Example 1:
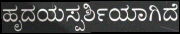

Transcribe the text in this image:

ಹೃದಯಸ್ಪರ್ಶಿಯಾಗಿದೆ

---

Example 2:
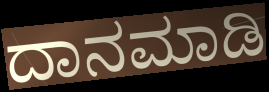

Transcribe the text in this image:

ದಾನಮಾಡಿ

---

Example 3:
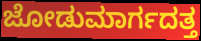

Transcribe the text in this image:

ಜೋಡುಮಾರ್ಗದತ್ತ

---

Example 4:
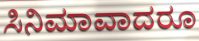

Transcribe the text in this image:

ಸಿನಿಮಾವಾದರೂ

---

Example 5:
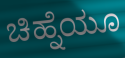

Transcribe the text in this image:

ಚಿಹ್ನೆಯೂ